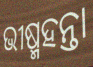
ଭୀଷ୍ମହନ୍ତା